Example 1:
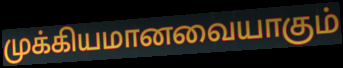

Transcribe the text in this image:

முக்கியமானவையாகும்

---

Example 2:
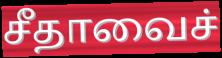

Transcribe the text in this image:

சீதாவைச்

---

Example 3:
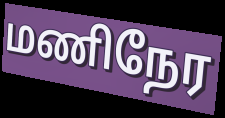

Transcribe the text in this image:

மணிநேர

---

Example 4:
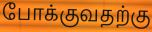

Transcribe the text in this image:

போக்குவதற்கு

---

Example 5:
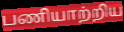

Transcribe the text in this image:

பணியாற்றிய